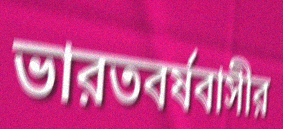
ভারতবর্ষবাসীর